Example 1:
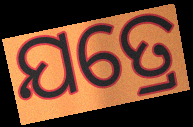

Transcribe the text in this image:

ଯତ୍ରେ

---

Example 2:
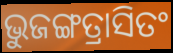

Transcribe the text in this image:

ଭୁଜଙ୍ଗତ୍ରାସିତଂ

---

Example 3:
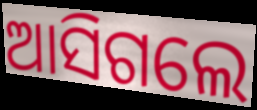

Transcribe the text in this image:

ଆସିଗଲେ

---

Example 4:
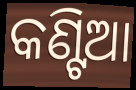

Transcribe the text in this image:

କଣ୍ଟିଆ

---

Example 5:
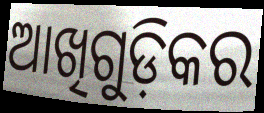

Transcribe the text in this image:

ଆଖିଗୁଡ଼ିକର